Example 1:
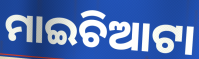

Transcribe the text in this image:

ମାଇଚିଆଟା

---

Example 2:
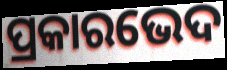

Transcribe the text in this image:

ପ୍ରକାରଭେଦ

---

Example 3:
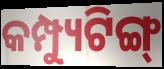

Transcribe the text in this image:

କମ୍ପ୍ୟୁଟିଙ୍ଗ୍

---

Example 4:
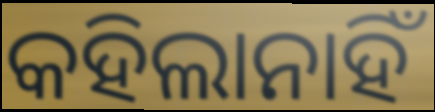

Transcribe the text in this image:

କହିଲାନାହିଁ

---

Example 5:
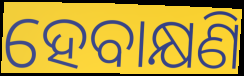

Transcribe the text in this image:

ହେବାକ୍ଷଣି